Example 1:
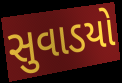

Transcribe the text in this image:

સુવાડયો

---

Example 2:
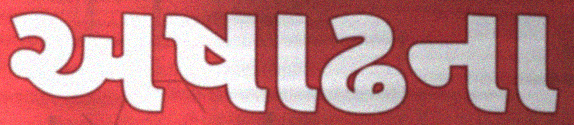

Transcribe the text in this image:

અષાઢના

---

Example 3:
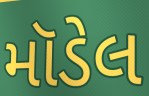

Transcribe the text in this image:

મૉડેલ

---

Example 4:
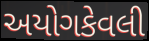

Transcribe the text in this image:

અયોગકેવલી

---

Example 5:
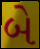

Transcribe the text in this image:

બે